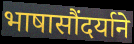
भाषासौंदर्याने